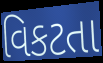
વિકટતા